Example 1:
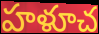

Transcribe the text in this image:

హళూచ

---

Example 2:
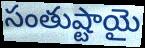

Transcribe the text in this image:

సంతుష్టాయై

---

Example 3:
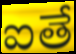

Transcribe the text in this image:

ఐతే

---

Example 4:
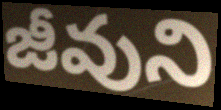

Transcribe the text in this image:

జీవుని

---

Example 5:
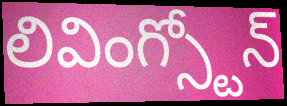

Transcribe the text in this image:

లివింగ్స్టోన్